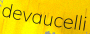
devaucelli